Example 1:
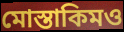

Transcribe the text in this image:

মোস্তাকিমও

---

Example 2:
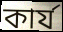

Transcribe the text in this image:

কার্য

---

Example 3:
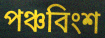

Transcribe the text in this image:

পঞ্চবিংশ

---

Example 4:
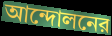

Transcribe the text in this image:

আন্দোলনের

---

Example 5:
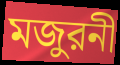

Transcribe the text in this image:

মজুরনী